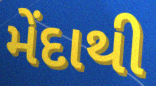
મેંદાથી